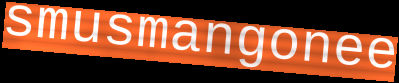
smusmangonee